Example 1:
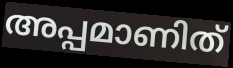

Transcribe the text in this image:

അപ്പമാണിത്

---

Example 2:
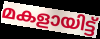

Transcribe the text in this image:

മകളായിട്ട്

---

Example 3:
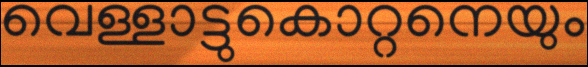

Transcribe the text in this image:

വെള്ളാട്ടുകൊറ്റനെയും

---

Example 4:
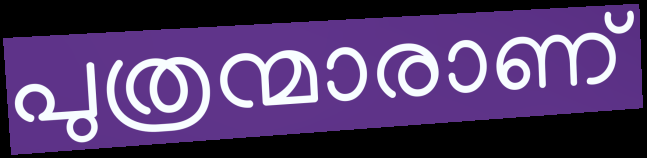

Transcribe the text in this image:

പുത്രന്മാരാണ്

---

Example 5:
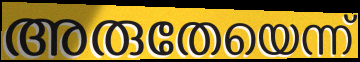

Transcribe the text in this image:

അരുതേയെന്ന്